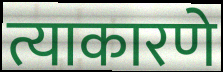
त्याकारणे